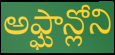
అఫ్ఘాన్లోని